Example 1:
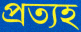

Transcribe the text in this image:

প্রত্যহ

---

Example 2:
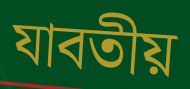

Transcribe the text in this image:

যাবতীয়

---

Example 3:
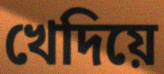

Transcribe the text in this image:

খেদিয়ে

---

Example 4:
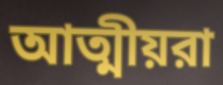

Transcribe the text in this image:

আত্মীয়রা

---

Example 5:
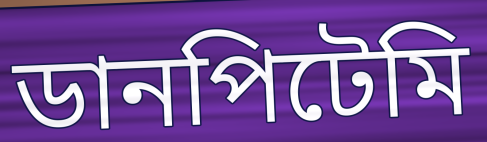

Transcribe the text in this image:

ডানপিটেমি